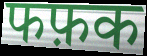
फफ़क